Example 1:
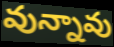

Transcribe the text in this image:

వున్నావు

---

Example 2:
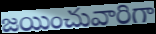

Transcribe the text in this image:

జయించువారిగా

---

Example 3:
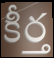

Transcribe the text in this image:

కీర్త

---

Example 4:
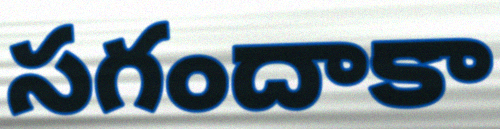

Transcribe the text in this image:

సగందాకా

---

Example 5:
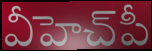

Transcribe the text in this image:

వీహెచ్‌పీ